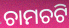
ଚାମଚଟି